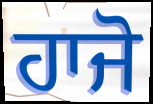
ਹਾਜੋ